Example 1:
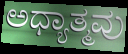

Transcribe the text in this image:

ಅಧ್ಯಾತ್ಮವು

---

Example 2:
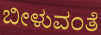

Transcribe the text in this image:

ಬೀಳುವಂತೆ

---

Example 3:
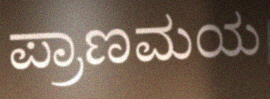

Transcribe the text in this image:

ಪ್ರಾಣಮಯ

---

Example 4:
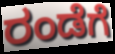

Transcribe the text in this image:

ರಂಡೆಗೆ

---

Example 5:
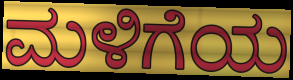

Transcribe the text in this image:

ಮಳಿಗೆಯ